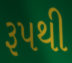
રૂપથી